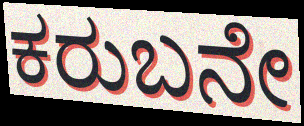
ಕರುಬನೇ